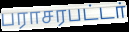
பராசரபட்டர்